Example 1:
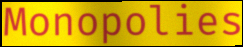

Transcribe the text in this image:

Monopolies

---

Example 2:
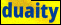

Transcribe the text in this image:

duaity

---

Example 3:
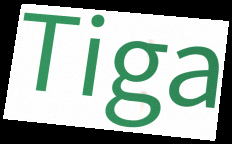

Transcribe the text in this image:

Tiga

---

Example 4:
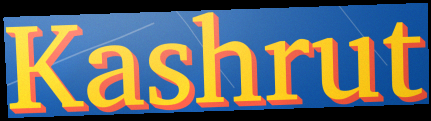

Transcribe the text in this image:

Kashrut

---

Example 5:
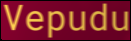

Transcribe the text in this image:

Vepudu